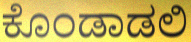
ಕೊಂಡಾಡಲಿ